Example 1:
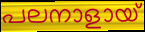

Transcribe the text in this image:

പലനാളായ്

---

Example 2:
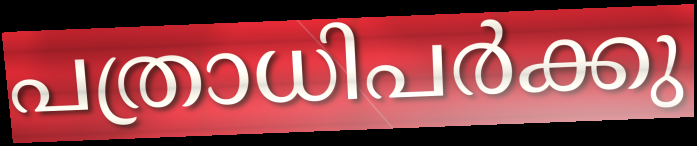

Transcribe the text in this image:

പത്രാധിപർക്കു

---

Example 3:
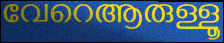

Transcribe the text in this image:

വേറെആരുള്ളൂ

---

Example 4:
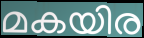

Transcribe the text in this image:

മകയിര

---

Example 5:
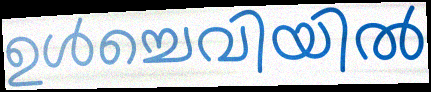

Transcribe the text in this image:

ഉൾച്ചെവിയിൽ